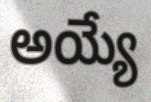
అయ్యే